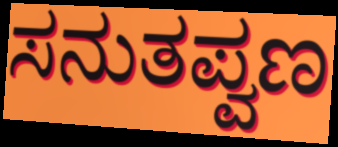
ಸನುತಪ್ವಣ